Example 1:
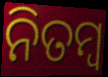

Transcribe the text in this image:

ନିତମ୍ବ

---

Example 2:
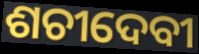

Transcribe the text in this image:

ଶଚୀଦେବୀ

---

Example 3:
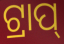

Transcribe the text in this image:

ଟ୍ରାପ୍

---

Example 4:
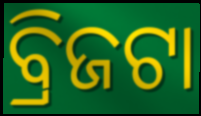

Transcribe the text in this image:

ବ୍ରିଜଟା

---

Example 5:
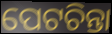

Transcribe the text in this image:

ପେଟଚିନ୍ତା